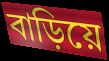
বাড়িয়ে